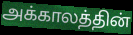
அக்காலத்தின்